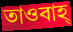
তাওবাহ্